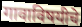
गावाविषयीचे